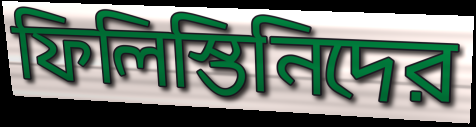
ফিলিস্তিনিদের